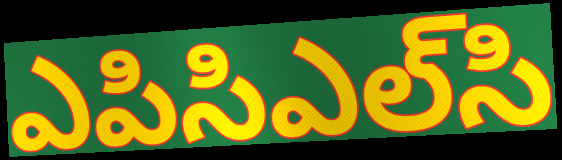
ఎపిసిఎల్‌సి